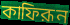
কাফিরূন